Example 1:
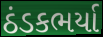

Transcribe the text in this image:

ઠંડકભર્યા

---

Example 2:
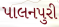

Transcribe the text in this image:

પાલનપુરી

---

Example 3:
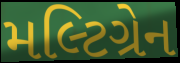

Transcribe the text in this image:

મલ્ટિગ્રેન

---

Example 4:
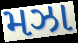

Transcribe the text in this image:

મઝા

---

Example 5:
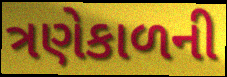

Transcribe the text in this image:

ત્રણેકાળની